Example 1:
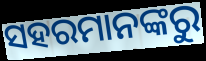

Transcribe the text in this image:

ସହରମାନଙ୍କରୁ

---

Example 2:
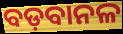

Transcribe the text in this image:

ବଡ଼ବାନଳ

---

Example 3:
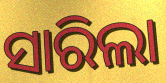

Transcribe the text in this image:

ସାରିଲା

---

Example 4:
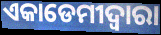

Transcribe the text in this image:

ଏକାଡେମୀଦ୍ୱାରା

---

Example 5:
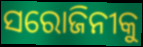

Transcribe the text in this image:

ସରୋଜିନୀକୁ